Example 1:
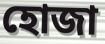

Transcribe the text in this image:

হোজা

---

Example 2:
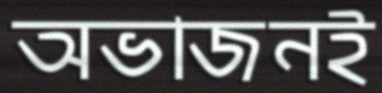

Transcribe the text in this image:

অভাজনই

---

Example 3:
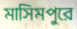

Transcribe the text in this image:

মাসিমপুরে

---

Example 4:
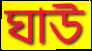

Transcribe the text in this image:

ঘাউ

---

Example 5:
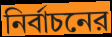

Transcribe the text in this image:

নির্বাচনের